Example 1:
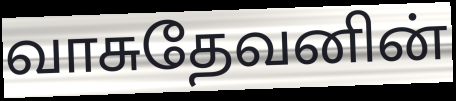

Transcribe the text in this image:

வாசுதேவனின்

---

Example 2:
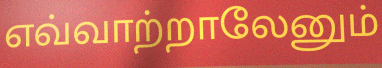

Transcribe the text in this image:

எவ்வாற்றாலேனும்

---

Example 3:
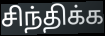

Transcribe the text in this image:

சிந்திக்க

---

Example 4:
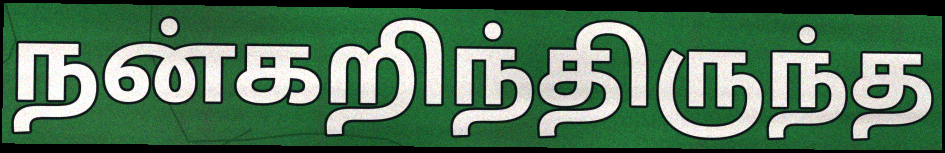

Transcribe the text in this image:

நன்கறிந்திருந்த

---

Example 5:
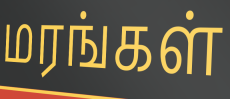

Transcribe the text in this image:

மரங்கள்